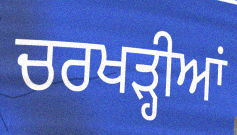
ਚਰਖੜ੍ਹੀਆਂ